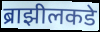
ब्राझीलकडे